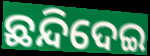
ଛନ୍ଦିଦେଇ